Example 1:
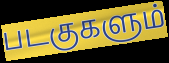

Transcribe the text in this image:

படகுகளும்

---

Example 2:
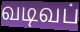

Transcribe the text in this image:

வடிவப்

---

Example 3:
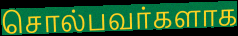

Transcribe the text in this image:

சொல்பவர்களாக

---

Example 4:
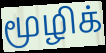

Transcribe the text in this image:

மூழிக்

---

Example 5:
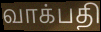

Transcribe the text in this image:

வாக்பதி